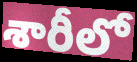
శారీలో